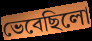
ভেবেছিলো